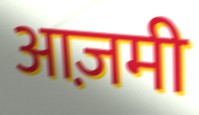
आज़मी